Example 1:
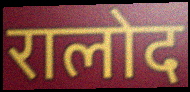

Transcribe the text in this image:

रालोद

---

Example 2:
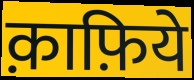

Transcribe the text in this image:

क़ाफ़िये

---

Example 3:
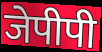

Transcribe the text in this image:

जेपीपी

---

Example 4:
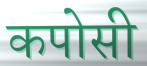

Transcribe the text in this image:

कपोसी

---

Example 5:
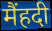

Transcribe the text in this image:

मैंहदी